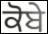
ਕੋਬੇ